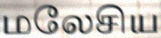
மலேசிய